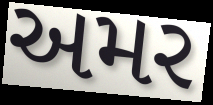
અમર